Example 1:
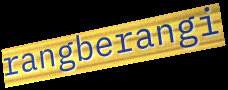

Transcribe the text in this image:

rangberangi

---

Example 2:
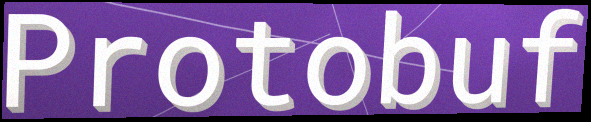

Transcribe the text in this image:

Protobuf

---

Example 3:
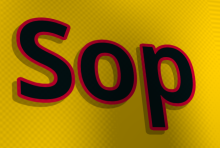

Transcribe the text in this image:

Sop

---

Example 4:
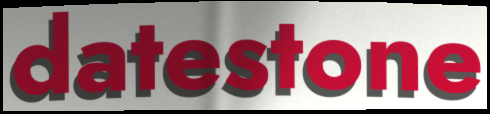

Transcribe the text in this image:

datestone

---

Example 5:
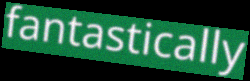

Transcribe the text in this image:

fantastically